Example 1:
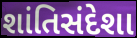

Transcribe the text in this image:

શાંતિસંદેશા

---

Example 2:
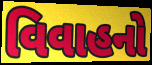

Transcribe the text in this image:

વિવાહનો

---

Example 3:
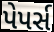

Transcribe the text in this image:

પેપર્સ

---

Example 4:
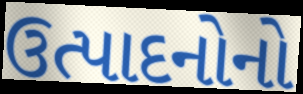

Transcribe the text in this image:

ઉત્પાદનોનો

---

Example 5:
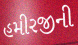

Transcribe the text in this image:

હમીરજીની